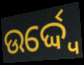
ଉର୍ଦ୍ଦ୍ୱେ